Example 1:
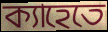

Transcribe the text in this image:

ক্যাহেতে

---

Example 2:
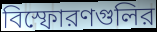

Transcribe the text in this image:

বিস্ফোরণগুলির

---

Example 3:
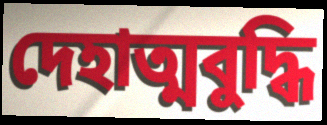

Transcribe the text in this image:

দেহাত্মবুদ্ধি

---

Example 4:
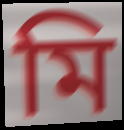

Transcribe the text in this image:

মি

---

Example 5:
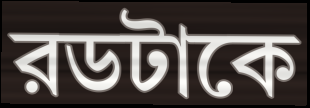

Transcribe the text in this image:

রডটাকে